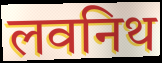
लवनिथ